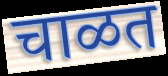
चाळत